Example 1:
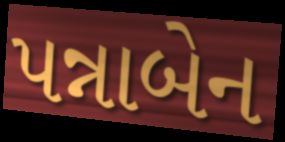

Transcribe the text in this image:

પન્નાબેન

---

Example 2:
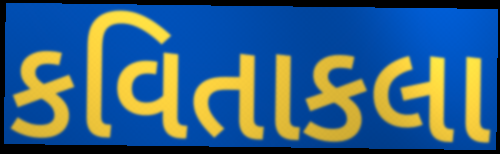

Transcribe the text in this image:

કવિતાકલા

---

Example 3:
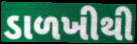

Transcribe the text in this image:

ડાળખીથી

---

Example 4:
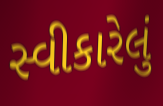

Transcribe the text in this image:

સ્વીકારેલું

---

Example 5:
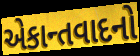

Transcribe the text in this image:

એકાન્તવાદનો